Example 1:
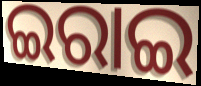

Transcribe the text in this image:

ଇରାଇ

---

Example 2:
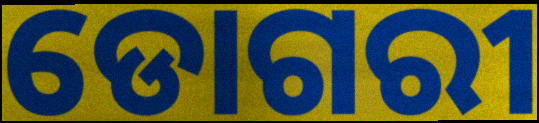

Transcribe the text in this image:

ଡୋଗରୀ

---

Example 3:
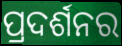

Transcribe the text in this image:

ପ୍ରଦର୍ଶନର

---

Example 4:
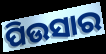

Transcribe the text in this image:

ପିଉସାର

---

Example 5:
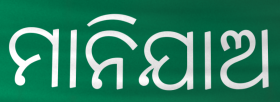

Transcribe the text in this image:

ମାନିଯାଅ